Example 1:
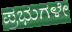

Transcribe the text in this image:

ಪ್ರಭುಗಳೇ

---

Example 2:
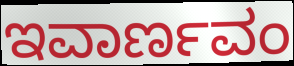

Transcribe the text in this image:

ಇವಾರ್ಣವಂ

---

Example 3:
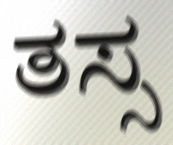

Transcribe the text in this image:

ತಸ್ಸ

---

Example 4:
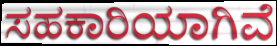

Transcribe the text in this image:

ಸಹಕಾರಿಯಾಗಿವೆ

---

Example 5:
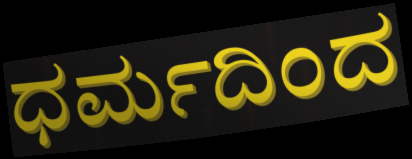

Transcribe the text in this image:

ಧರ್ಮದಿಂದ